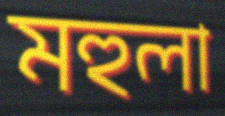
মহুলা